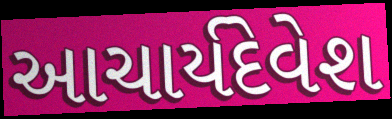
આચાર્યદેવેશ